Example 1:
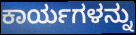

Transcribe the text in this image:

ಕಾರ್ಯಗಳನ್ನು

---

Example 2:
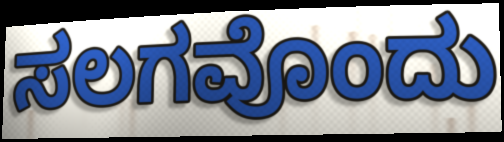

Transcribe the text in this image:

ಸಲಗವೊಂದು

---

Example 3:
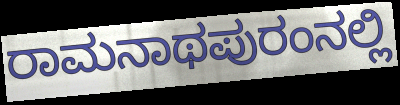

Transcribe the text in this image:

ರಾಮನಾಥಪುರಂನಲ್ಲಿ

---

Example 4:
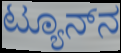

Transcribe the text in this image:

ಟ್ಯೂನ್‌ನ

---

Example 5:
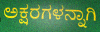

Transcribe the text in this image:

ಅಕ್ಷರಗಳನ್ನಾಗಿ